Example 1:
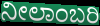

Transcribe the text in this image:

ನೀಲಾಂಬರಿ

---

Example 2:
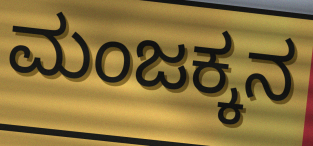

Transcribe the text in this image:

ಮಂಜಕ್ಕನ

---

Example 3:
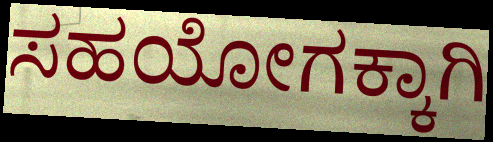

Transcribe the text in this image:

ಸಹಯೋಗಕ್ಕಾಗಿ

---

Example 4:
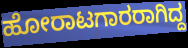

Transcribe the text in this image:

ಹೋರಾಟಗಾರರಾಗಿದ್ದ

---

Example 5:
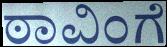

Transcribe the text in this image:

ಠಾವಿಂಗೆ